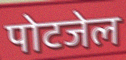
पोटजेल